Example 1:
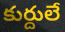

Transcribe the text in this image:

కుర్దులే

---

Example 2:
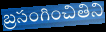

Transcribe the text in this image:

బ్రసంగించితిని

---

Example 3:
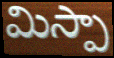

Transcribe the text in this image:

మిస్పా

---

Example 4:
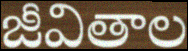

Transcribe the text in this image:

జీవితాల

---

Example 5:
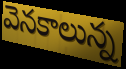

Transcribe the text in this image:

వెనకాలున్న